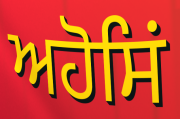
ਅਹੋਸਿਂ